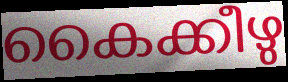
കൈക്കീഴു